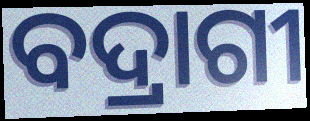
ବଦ୍ରାଗୀ